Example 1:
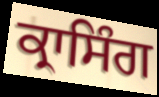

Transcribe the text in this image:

ਕ੍ਰਾਸਿੰਗ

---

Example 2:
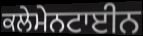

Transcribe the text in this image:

ਕਲੇਮੇਨਟਾਈਨ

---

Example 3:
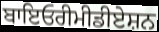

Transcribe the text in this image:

ਬਾਇਓਰੀਮੀਡੀਏਸ਼ਨ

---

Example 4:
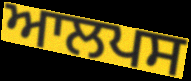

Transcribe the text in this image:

ਆਲਪਸ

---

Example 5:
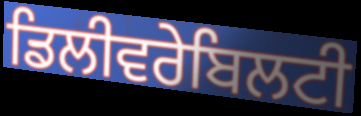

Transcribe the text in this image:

ਡਿਲੀਵਰੇਬਿਲਟੀ